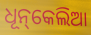
ଧୂନ୍‌କେଲିଆ